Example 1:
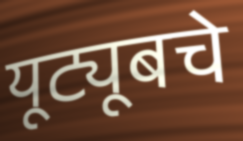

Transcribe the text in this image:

यूट्यूबचे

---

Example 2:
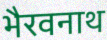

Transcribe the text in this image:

भैरवनाथ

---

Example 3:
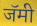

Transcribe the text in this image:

जॅमी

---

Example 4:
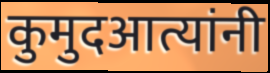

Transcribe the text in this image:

कुमुदआत्यांनी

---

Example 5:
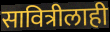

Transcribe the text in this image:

सावित्रीलाही